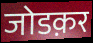
जोडक़र